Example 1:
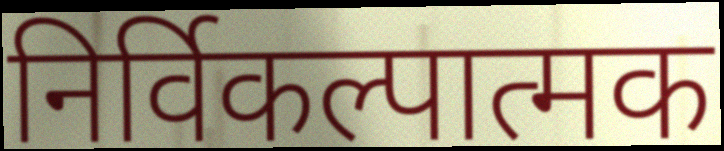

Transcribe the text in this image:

निर्विकल्पात्मक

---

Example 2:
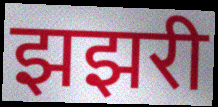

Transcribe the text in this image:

झझरी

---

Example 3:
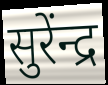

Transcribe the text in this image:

सुरेंन्द्र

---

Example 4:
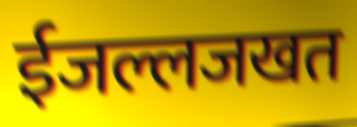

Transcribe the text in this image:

ईजल्लजखत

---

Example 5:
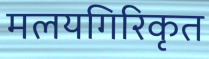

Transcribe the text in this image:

मलयगिरिकृत